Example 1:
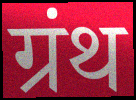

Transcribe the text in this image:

ग्रंथ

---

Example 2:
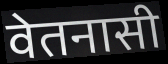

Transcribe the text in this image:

वेतनासी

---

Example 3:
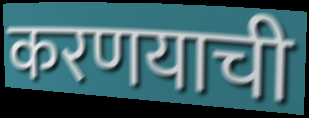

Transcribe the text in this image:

करणयाची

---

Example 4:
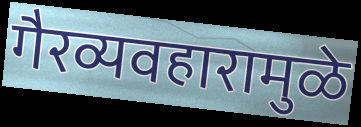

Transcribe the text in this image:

गैरव्यवहारामुळे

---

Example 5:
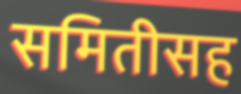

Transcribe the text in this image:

समितीसह